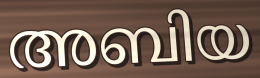
അബിയ